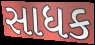
સાધક